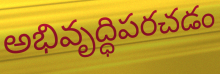
అభివృద్ధిపరచడం